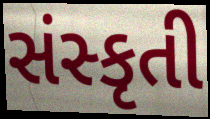
સંસ્કૃતી